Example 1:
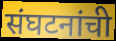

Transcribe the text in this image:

संघटनांची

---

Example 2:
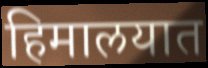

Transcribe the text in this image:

हिमालयात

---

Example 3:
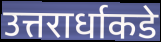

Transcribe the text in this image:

उत्तरार्धाकडे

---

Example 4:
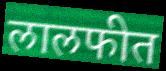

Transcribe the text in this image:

लालफीत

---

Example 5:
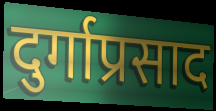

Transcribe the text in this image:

दुर्गाप्रसाद